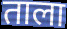
ताला